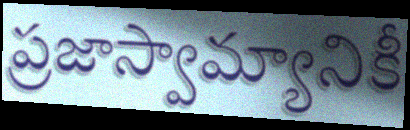
ప్రజాస్వామ్యానికీ